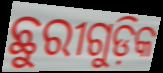
ଛୁରୀଗୁଡ଼ିକ